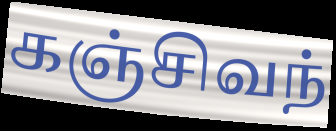
கஞ்சிவந்